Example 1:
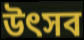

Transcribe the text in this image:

উত্‍সব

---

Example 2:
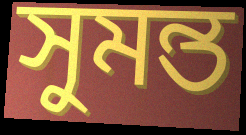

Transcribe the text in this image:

সুমন্ত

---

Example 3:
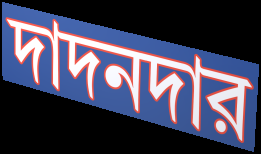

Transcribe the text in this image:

দাদনদার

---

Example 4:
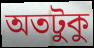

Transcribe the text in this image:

অতটুকু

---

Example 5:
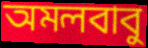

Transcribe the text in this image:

অমলবাবু